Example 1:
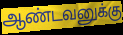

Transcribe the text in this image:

ஆண்டவனுக்கு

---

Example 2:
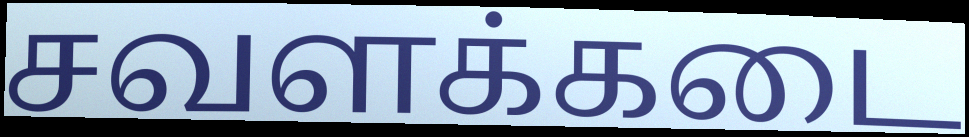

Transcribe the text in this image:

சவளக்கடை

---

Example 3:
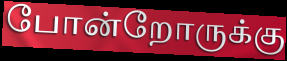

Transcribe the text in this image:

போன்றோருக்கு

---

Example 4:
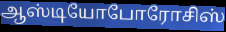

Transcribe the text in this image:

ஆஸ்டியோபோரோசிஸ்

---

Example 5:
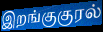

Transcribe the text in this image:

இறங்குகுரல்